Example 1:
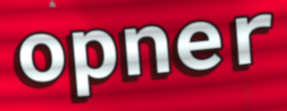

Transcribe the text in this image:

opner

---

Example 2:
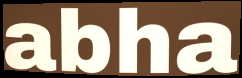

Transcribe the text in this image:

abha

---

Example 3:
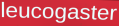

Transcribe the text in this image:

leucogaster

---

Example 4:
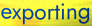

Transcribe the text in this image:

exporting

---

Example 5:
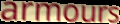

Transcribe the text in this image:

armours